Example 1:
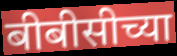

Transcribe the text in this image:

बीबीसीच्या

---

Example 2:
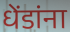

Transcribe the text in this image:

धेंडांना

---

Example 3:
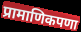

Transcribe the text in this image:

प्रामाणिकपणा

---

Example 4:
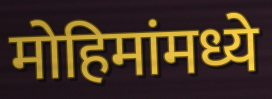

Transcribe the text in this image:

मोहिमांमध्ये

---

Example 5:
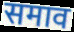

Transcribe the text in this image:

समाव